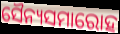
ସୈନ୍ୟସମାରୋହ